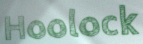
Hoolock